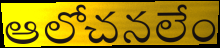
ఆలోచనలేం